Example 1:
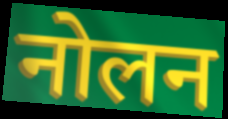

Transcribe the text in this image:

नोलन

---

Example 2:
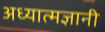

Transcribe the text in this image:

अध्यात्मज्ञानी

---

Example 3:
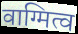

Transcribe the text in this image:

वाग्मित्व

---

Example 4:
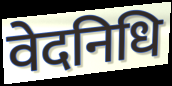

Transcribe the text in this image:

वेदनिधि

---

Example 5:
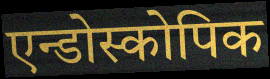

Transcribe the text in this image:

एन्डोस्कोपिक